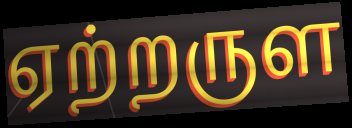
ஏற்றருள